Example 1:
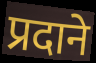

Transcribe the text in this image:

प्रदाने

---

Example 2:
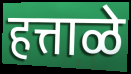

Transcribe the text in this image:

हत्ताळे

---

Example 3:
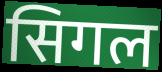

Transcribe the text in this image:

सिगल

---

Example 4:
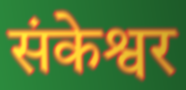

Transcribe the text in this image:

संकेश्वर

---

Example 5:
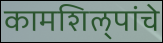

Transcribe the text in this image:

कामशिल्पांचे